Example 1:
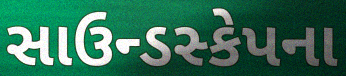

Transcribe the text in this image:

સાઉન્ડસ્કેપના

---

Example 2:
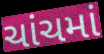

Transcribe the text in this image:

ચાંચમાં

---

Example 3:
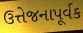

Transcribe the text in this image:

ઉત્તેજનાપૂર્વક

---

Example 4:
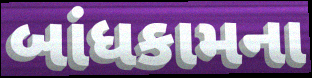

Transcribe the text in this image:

બાંધકામના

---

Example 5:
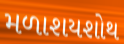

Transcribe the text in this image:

મળાશયશોથ